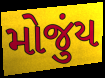
મોજુંય